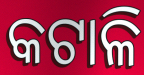
କଟାଳି